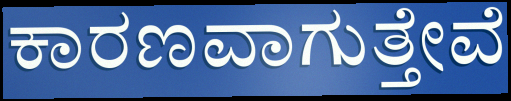
ಕಾರಣವಾಗುತ್ತೇವೆ